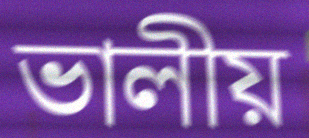
ভালীয়